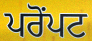
ਪਰੋਂਪਟ